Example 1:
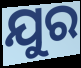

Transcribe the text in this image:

ଯୁର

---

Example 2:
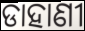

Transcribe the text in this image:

ଡାହାଣୀ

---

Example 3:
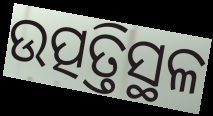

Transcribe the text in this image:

ଉତ୍ପତ୍ତିସ୍ଥଳ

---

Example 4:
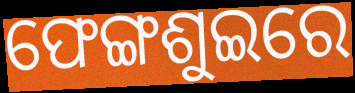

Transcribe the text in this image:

ଫେଙ୍ଗଶୁଇରେ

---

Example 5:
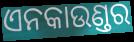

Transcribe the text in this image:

ଏନକାଉଣ୍ଡର